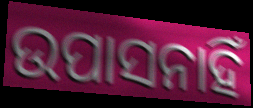
ଉପାସନାହିଁ